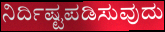
ನಿರ್ದಿಷ್ಟಪಡಿಸುವುದು